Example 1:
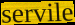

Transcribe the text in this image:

servile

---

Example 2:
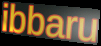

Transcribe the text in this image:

ibbaru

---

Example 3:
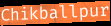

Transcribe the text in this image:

Chikballpur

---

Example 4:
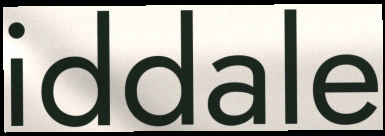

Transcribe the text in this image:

iddale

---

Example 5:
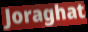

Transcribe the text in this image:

Joraghat